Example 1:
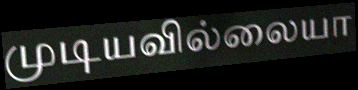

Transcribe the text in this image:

முடியவில்லையா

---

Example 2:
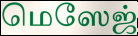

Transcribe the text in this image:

மெஸேஜ்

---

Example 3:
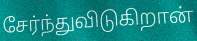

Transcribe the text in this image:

சேர்ந்துவிடுகிறான்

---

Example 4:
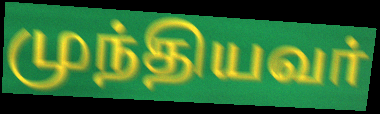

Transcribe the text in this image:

முந்தியவர்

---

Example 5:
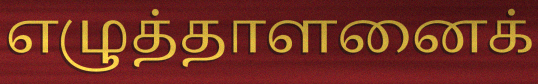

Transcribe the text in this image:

எழுத்தாளனைக்